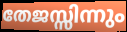
തേജസ്സിന്നും